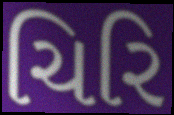
ચિરિ